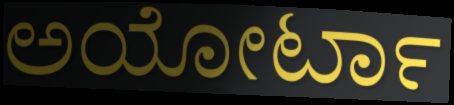
ಅಯೋರ್ಟಾ